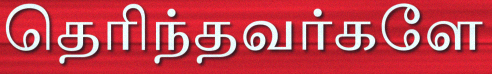
தெரிந்தவர்களே